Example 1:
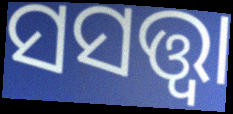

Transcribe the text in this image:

ସସତ୍ତ୍ୱା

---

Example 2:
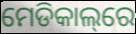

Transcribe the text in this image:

ମେଡିକାଲ୍‌ରେ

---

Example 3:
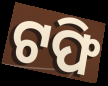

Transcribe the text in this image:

ଟଫି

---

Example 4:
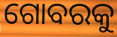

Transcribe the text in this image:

ଗୋବରକୁ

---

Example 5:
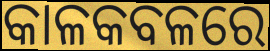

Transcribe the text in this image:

କାଳକବଳରେ